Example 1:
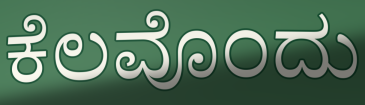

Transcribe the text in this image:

ಕೆಲವೊಂದು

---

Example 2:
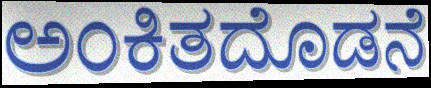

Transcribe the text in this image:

ಅಂಕಿತದೊಡನೆ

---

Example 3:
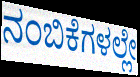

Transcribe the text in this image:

ನಂಬಿಕೆಗಳಲ್ಲೇ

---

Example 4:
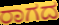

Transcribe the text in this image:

ರಾಗದ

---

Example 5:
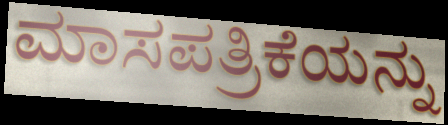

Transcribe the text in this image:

ಮಾಸಪತ್ರಿಕೆಯನ್ನು